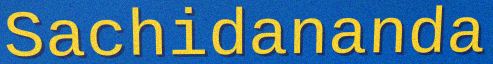
Sachidananda